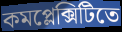
কমপ্লেক্সিটিতে